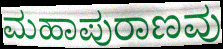
ಮಹಾಪುರಾಣವು